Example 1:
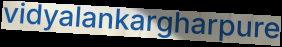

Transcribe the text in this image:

vidyalankargharpure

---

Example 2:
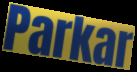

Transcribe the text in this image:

Parkar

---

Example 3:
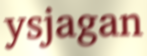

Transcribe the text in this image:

ysjagan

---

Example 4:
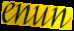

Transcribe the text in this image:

enun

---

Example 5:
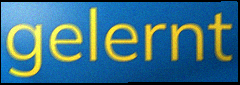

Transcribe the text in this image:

gelernt